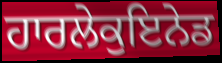
ਹਾਰਲੇਕੁਇਨੇਡ